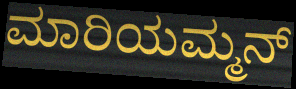
ಮಾರಿಯಮ್ಮನ್